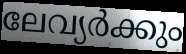
ലേവ്യർക്കും